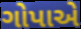
ગોપાએ